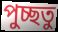
পুচ্ছতু